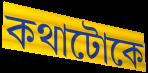
কথাটোকে